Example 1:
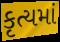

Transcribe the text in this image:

કૃત્યમાં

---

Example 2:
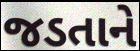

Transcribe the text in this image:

જડતાને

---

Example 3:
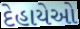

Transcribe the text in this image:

દેહાયેઓ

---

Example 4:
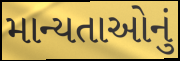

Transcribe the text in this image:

માન્યતાઓનું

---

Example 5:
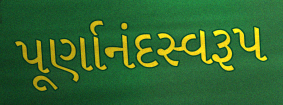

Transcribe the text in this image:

પૂર્ણાનંદસ્વરૂપ